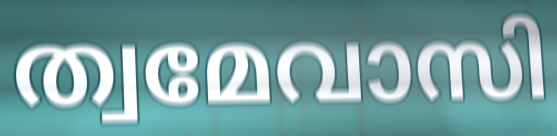
ത്വമേവാസി